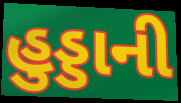
હુડ્ડાની